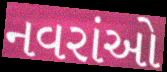
નવરાંઓ